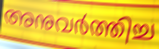
അനുവർത്തിച്ച